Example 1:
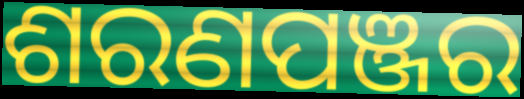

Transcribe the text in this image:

ଶରଣପଞ୍ଜର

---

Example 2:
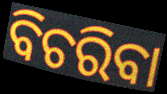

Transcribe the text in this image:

ବିଚରିବା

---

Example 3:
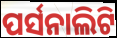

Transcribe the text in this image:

ପର୍ସନାଲିଟି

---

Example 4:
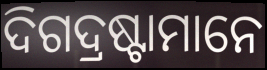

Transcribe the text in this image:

ଦିଗଦ୍ରଷ୍ଟାମାନେ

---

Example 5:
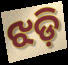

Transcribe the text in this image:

ଝଡ଼ି